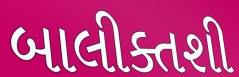
બાલીક્તશી